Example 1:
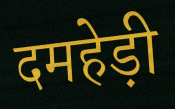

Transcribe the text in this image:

दमहेड़ी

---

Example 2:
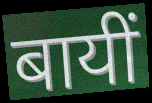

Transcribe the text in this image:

बायीं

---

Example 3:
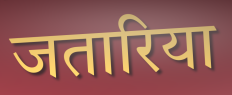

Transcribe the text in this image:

जतारिया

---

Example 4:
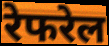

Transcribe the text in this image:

रेफरेल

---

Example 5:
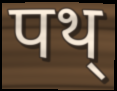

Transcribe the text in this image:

पथ्